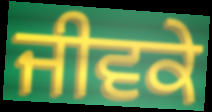
ਜੀਵਕੇ